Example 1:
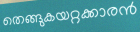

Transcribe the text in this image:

തെങ്ങുകയറ്റക്കാരൻ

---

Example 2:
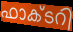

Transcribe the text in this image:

ഫാക്ടറി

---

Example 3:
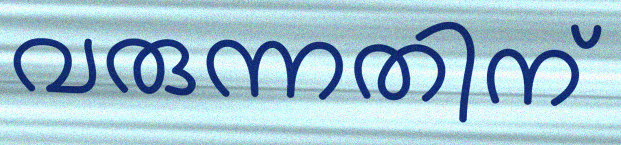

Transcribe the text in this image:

വരുന്നതിന്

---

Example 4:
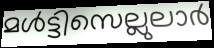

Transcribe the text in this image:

മൾട്ടിസെല്ലുലാർ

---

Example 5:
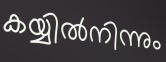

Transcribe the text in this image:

കയ്യിൽനിന്നും